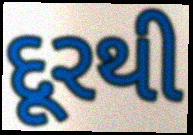
દૂરથી